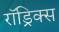
रॉड्रिक्स